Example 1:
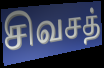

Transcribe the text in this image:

சிவசத்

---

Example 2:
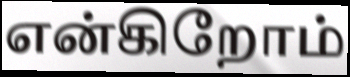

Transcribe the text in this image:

என்கிறோம்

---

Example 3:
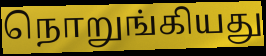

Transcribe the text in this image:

நொறுங்கியது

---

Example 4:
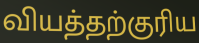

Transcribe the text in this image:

வியத்தற்குரிய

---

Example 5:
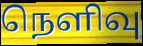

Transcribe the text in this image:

நெளிவு